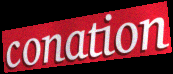
conation